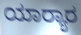
ಯಾರ‍್ಯಾರ